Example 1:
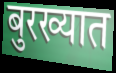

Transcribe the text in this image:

बुरख्यात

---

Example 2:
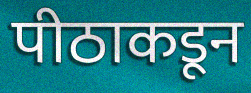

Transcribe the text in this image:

पीठाकडून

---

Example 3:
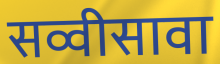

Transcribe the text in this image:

सव्वीसावा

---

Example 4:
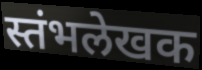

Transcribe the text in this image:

स्तंभलेखक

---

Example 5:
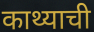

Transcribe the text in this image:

काथ्याची